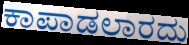
ಕಾಪಾಡಲಾರದು